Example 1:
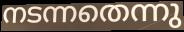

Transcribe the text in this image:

നടന്നതെന്നു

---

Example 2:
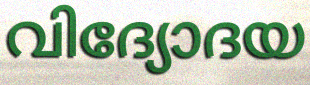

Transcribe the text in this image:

വിദ്യോദയ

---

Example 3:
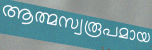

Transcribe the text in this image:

ആത്മസ്വരൂപമായ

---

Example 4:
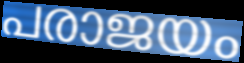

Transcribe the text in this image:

പരാജയം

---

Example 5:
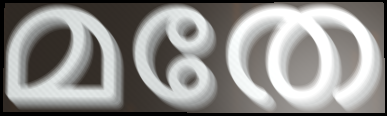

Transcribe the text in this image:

മതേ